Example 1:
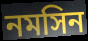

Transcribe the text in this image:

নমসিন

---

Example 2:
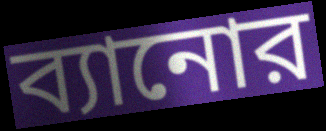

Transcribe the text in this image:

ব্যানোর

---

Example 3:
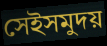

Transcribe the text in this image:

সেইসমুদয়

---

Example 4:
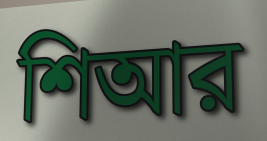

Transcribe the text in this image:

শিআর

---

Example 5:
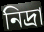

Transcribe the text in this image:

নিদ্রা